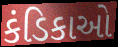
કંડિકાઓ